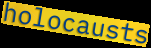
holocausts